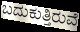
ಬದುಕುತ್ತಿರುವೆ